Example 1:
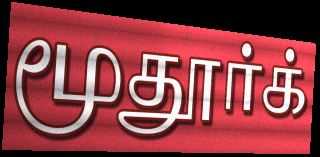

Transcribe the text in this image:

மூதூர்க்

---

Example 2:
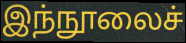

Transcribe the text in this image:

இந்நூலைச்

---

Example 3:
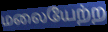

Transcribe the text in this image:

மலையேற்ற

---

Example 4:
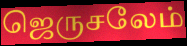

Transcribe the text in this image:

ஜெருசலேம்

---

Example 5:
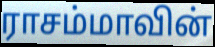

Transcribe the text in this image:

ராசம்மாவின்